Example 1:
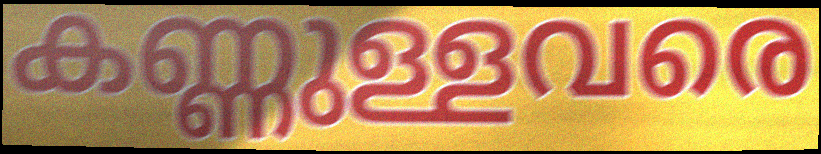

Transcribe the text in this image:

കണ്ണുള്ളവരെ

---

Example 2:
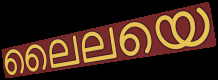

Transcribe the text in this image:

ലൈലയെ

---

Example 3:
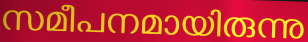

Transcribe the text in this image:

സമീപനമായിരുന്നു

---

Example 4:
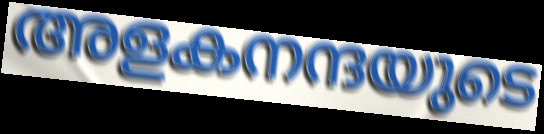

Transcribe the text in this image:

അളകനന്ദയുടെ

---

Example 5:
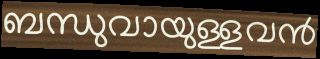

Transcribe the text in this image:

ബന്ധുവായുള്ളവൻ